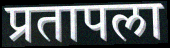
प्रतापला